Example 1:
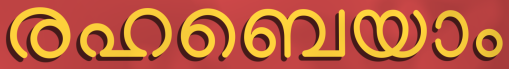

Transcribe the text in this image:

രഹബെയാം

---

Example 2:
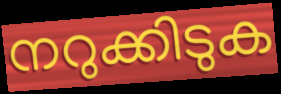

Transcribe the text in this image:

നറുക്കിടുക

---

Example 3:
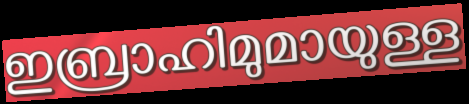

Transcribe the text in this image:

ഇബ്രാഹിമുമായുള്ള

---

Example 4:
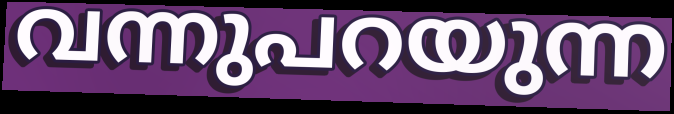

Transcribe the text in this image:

വന്നുപറയുന്ന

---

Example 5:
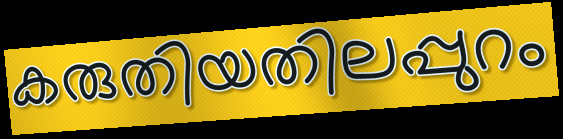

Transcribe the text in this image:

കരുതിയതിലപ്പുറം